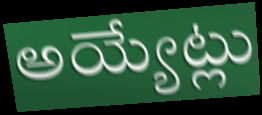
అయ్యేట్లు